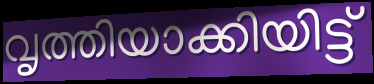
വൃത്തിയാക്കിയിട്ട്